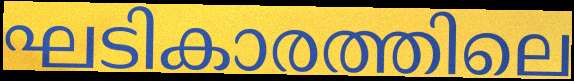
ഘടികാരത്തിലെ